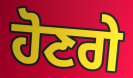
ਹੋਣਗੇ